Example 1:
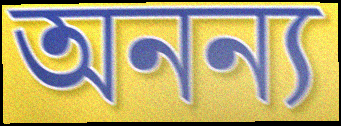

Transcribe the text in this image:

অনন্য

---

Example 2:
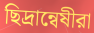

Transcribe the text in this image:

ছিদ্রান্বেষীরা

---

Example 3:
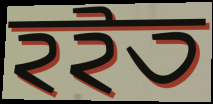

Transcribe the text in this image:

হইত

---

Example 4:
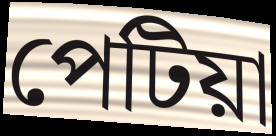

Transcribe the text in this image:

পেটিয়া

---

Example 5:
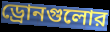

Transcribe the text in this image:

ড্রোনগুলোর